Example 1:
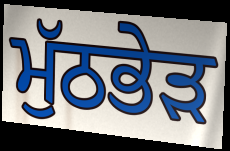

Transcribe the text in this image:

ਮੁੱਠਭੇੜ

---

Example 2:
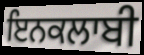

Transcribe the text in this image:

ਇਨਕਲਾਬੀ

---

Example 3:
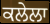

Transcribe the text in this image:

ਕਲੇਲਾ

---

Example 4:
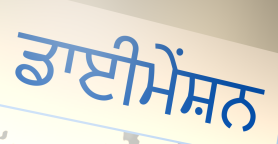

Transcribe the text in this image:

ਡਾਈਮੇਂਸ਼ਨ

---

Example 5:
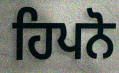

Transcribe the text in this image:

ਹਿਪਨੋ